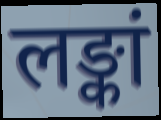
लङ्कां